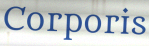
Corporis